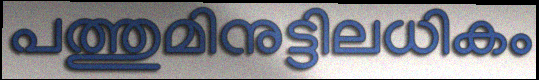
പത്തുമിനുട്ടിലധികം